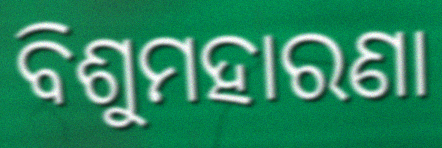
ବିଶୁମହାରଣା